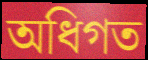
অধিগত